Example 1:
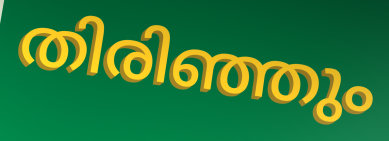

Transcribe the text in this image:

തിരിഞ്ഞും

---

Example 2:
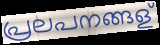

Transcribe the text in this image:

പ്രലപനങ്ങള്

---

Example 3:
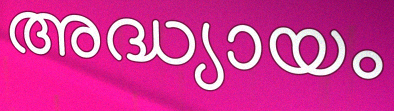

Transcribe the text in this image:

അദ്ധ്യായം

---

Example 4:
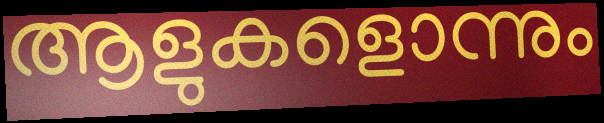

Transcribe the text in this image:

ആളുകളൊന്നും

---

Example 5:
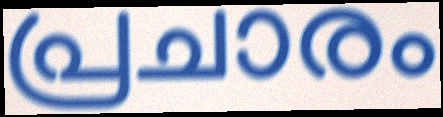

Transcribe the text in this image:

പ്രചാരം